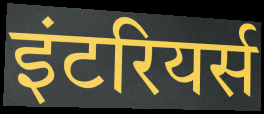
इंटरियर्स